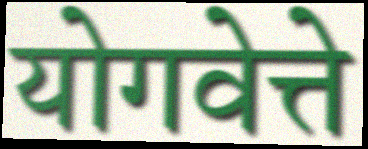
योगवेत्ते